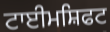
ਟਾਈਮਸ਼ਿਫਟ